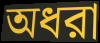
অধরা